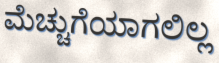
ಮೆಚ್ಚುಗೆಯಾಗಲಿಲ್ಲ